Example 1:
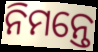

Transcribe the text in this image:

ନିମନ୍ତେ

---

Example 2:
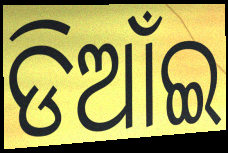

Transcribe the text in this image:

ଡିଆଁଇ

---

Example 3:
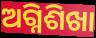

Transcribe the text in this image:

ଅଗ୍ନିଶିଖା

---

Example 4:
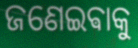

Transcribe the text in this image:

ଜଣେଇଵାକୁ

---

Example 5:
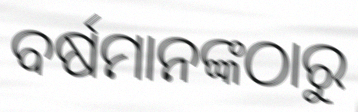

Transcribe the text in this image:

ବର୍ଷମାନଙ୍କଠାରୁ